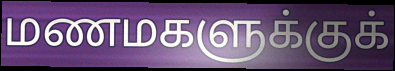
மணமகளுக்குக்